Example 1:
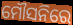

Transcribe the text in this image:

ମୌସନିରେ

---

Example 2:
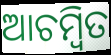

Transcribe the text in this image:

ଆଚମ୍ବିତ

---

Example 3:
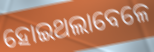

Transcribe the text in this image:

ହୋଇଥଲାବେଳେ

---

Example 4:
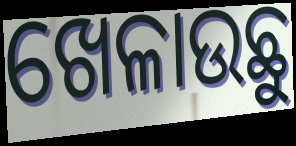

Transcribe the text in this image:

ଖେଳାଉଛୁ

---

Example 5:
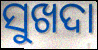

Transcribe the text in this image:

ସୁଖଦା